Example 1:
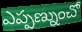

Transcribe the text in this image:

ఎప్పణ్నుంచో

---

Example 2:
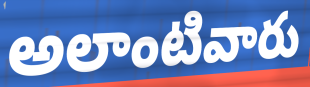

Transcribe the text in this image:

అలాంటివారు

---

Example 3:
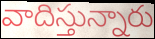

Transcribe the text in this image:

వాదిస్తున్నారు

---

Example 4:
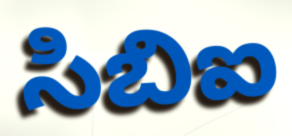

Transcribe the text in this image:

సిబిఐ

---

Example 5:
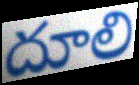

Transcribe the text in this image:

దూలి